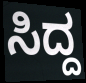
ಸಿದ್ದ